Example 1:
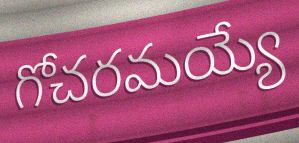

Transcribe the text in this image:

గోచరమయ్యే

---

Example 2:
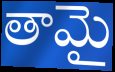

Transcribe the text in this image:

తామై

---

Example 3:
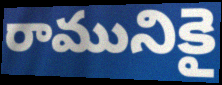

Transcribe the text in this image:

రామునికై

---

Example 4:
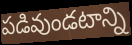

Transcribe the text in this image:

పడివుండటాన్ని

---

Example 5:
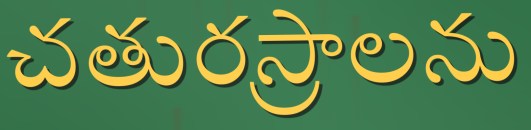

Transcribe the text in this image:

చతురస్రాలను